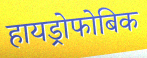
हायड्रोफोबिक